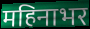
महिनाभर